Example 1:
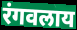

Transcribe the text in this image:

रंगवलाय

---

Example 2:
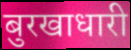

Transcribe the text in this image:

बुरखाधारी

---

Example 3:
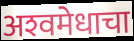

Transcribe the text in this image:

अश्‍वमेधाचा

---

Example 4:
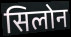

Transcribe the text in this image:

सिलोन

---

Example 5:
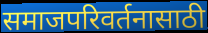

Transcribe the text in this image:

समाजपरिवर्तनासाठी